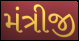
મંત્રીજી